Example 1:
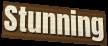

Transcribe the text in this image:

Stunning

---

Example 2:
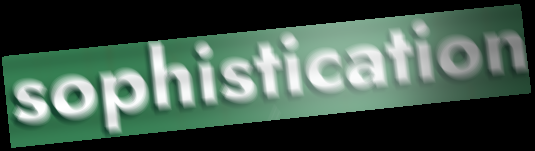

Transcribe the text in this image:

sophistication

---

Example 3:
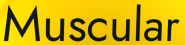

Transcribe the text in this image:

Muscular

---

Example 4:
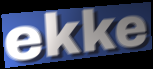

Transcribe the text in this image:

ekke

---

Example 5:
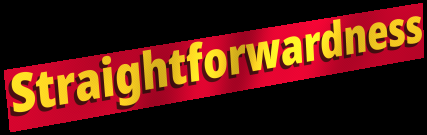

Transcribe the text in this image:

Straightforwardness